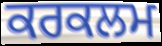
ਕਰਕਲਮ